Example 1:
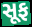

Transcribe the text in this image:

સૂફ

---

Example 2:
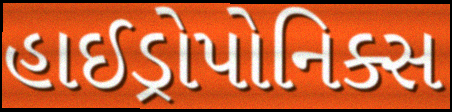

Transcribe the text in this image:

હાઈડ્રોપોનિક્સ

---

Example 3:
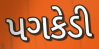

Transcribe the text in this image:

પગકેડી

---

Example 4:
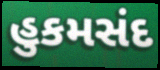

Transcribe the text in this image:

હુકમસંદ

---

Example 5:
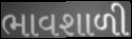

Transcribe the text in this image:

ભાવશાળી